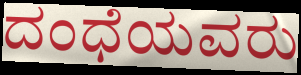
ದಂಧೆಯವರು